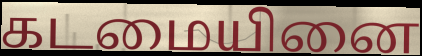
கடமையினை